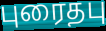
புரைதபு